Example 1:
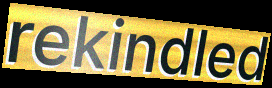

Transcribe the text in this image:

rekindled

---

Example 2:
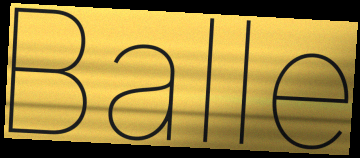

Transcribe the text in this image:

Balle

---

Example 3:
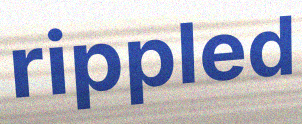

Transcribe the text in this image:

rippled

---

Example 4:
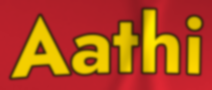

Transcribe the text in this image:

Aathi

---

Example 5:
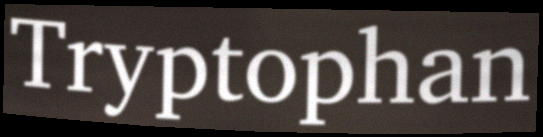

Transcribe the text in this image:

Tryptophan